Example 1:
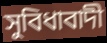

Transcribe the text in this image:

সুবিধাবাদী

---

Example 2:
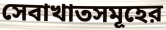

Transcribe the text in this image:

সেবাখাতসমূহের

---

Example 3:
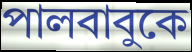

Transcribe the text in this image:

পালবাবুকে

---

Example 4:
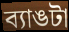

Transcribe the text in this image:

ব্যাঙটা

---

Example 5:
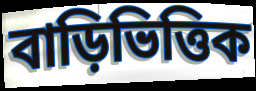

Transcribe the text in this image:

বাড়িভিত্তিক